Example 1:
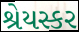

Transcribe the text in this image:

શ્રેયસ્કર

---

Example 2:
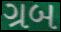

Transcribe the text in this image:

ગ્રબ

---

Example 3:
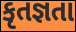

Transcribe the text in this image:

કૃતજ્ઞતા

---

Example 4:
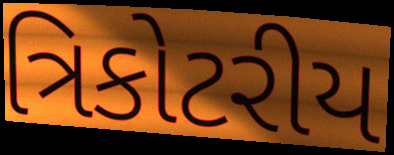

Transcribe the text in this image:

ત્રિકોટરીય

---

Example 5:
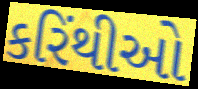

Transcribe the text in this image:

કરિંથીઓ